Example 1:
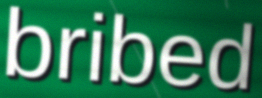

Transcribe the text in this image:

bribed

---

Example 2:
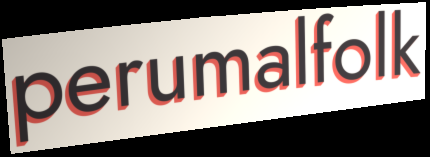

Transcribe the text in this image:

perumalfolk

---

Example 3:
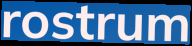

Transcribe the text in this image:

rostrum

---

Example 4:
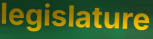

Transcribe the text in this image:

legislature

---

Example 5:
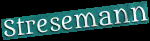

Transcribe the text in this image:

Stresemann